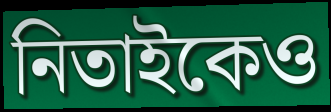
নিতাইকেও